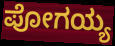
ಪೋಗಯ್ಯ